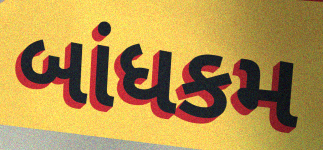
બાંધકમ